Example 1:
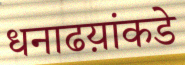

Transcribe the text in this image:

धनाढय़ांकडे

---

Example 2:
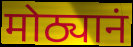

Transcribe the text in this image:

मोठ्यानं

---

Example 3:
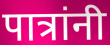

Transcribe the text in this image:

पात्रांनी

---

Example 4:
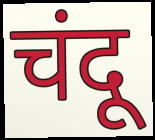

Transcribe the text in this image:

चंदू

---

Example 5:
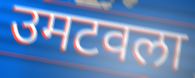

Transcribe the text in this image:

उमटवला